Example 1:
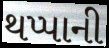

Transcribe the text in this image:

થપ્પાની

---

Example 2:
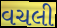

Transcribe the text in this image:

વચલી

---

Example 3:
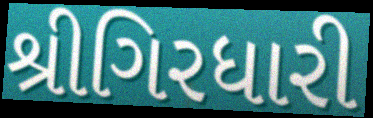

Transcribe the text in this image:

શ્રીગિરધારી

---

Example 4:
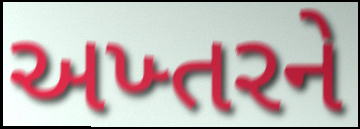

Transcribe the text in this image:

અખ્તરને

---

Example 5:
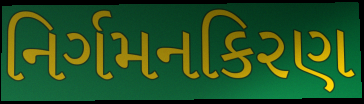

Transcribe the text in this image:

નિર્ગમનકિરણ